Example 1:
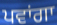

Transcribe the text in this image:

ਪਵਾਂਗਾ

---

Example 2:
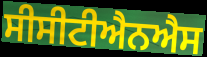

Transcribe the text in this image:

ਸੀਸੀਟੀਐਨਐਸ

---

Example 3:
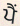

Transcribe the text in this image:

ਪੈਂ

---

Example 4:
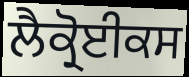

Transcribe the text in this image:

ਲੈਕ੍ਰੋਈਕਸ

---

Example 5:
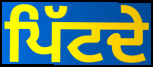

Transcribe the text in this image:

ਪਿੱਟਦੇ